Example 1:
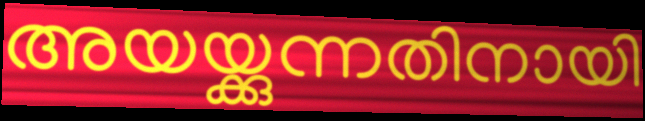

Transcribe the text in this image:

അയയ്ക്കുന്നതിനായി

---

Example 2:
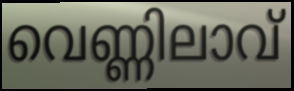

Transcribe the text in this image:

വെണ്ണിലാവ്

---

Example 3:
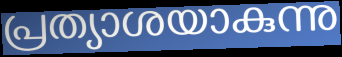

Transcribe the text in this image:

പ്രത്യാശയാകുന്നു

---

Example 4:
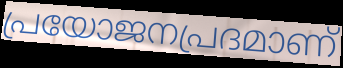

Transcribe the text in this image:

പ്രയോജനപ്രദമാണ്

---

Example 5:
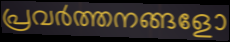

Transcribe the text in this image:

പ്രവർത്തനങ്ങളോ